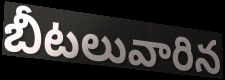
బీటలువారిన